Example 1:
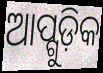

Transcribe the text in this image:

ଆପ୍ଗୁଡ଼ିକ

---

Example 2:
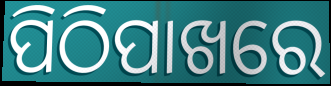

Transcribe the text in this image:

ପିଠିପାଖରେ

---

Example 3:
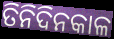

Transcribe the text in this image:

ତିନିଦିନକାଳ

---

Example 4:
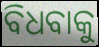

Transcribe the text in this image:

ବିଧବାକୁ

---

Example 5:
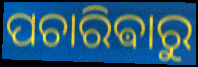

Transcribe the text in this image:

ପଚାରିଵାରୁ